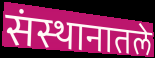
संस्थानातले